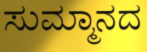
ಸುಮ್ಮಾನದ